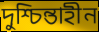
দুশ্চিন্তাহীন